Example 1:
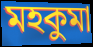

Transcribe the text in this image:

মহকুমা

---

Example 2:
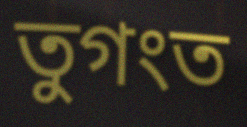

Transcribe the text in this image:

তুগংত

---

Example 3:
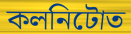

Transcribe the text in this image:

কলনিটোত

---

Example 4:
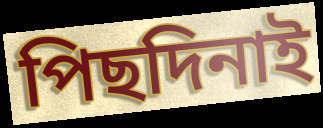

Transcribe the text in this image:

পিছদিনাই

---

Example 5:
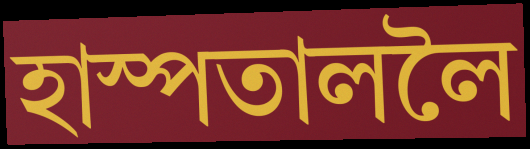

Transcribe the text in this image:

হাস্পতাললৈ